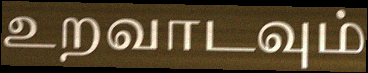
உறவாடவும்